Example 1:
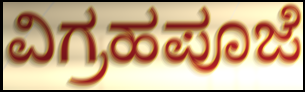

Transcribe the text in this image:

ವಿಗ್ರಹಪೂಜೆ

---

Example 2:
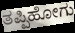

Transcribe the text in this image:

ತಪ್ಪಿಹೋಗು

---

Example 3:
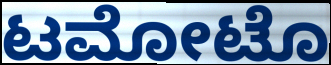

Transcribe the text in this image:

ಟಮೋಟೊ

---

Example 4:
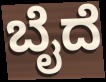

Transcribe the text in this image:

ಬೈದೆ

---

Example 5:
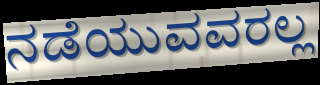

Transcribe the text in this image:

ನಡೆಯುವವರಲ್ಲ